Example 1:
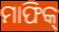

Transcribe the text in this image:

ମାଫିକ୍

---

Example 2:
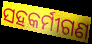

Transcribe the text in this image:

ସହକର୍ମୀଗଣ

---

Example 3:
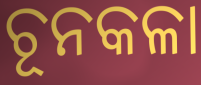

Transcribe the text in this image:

ଚୂନକଳା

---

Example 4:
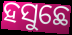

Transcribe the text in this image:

ହସୁଛେ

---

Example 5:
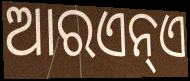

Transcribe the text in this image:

ଆରଏନ୍ଏ